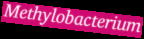
Methylobacterium